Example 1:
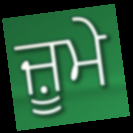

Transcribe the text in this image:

ਜ਼ੂਮੇ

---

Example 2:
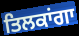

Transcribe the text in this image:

ਤਿਲਕਾਂਗਾ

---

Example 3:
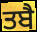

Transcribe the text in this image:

ਤਬੈ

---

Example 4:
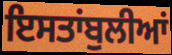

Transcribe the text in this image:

ਇਸਤਾਂਬੁਲੀਆਂ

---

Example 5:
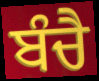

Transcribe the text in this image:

ਬੰਚੈ